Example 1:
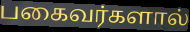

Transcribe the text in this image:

பகைவர்களால்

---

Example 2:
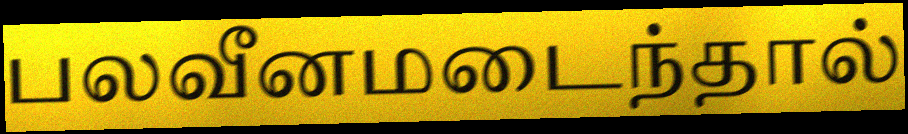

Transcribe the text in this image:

பலவீனமடைந்தால்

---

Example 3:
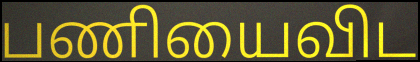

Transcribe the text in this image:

பணியைவிட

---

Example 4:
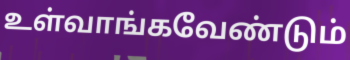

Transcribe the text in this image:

உள்வாங்கவேண்டும்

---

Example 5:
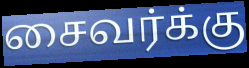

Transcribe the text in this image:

சைவர்க்கு